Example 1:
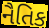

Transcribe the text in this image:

નૈતિક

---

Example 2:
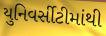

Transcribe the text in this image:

યુનિવર્સીટીમાંથી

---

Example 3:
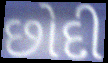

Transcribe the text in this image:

છોદી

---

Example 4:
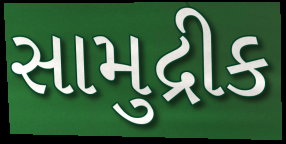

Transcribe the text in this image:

સામુદ્રીક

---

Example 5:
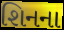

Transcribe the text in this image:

શિનના